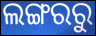
ଲଙ୍ଗରରୁ